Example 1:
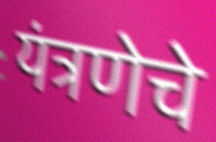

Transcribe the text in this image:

यंत्रणेचे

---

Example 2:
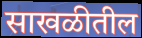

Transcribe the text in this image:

साखळीतील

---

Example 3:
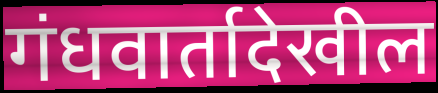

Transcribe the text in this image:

गंधवार्तादेखील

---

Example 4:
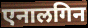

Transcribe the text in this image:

एनालगिन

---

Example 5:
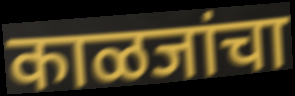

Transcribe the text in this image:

काळजांचा